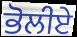
ਭੋਲੀਏ